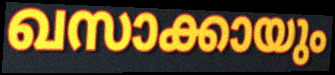
ഖസാക്കായും